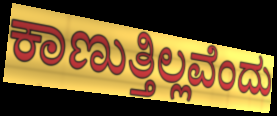
ಕಾಣುತ್ತಿಲ್ಲವೆಂದು